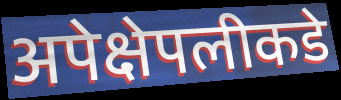
अपेक्षेपलीकडे